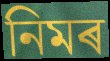
নিমৰ